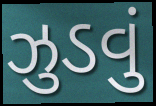
ઝુડવું